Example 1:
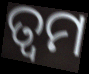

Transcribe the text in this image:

ତ୍ୱମ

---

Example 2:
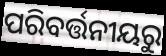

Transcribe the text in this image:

ପରିବର୍ତ୍ତନୀୟରୁ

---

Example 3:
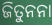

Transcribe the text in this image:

ଜିତୁନନା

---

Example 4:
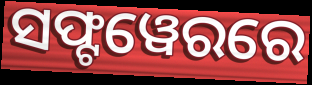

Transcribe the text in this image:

ସଫ୍ଟୱେରରେ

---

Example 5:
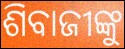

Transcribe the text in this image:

ଶିବାଜୀଙ୍କୁ